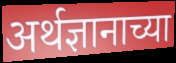
अर्थज्ञानाच्या